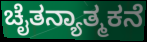
ಚೈತನ್ಯಾತ್ಮಕನೆ